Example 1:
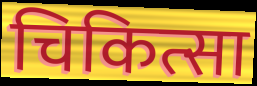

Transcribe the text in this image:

चिकित्सा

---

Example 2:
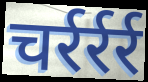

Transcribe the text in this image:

चर्रर्रर्र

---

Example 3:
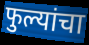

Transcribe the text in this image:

फुल्यांचा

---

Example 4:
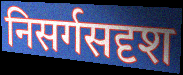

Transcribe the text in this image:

निसर्गसदृश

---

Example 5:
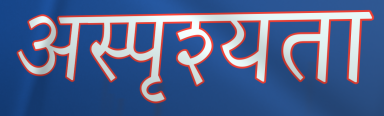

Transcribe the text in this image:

अस्पृश्यता